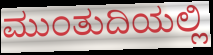
ಮುಂತುದಿಯಲ್ಲಿ